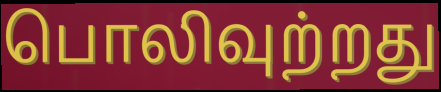
பொலிவுற்றது